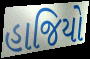
હાજિયો